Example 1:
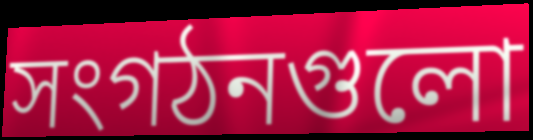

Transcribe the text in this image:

সংগঠনগুলো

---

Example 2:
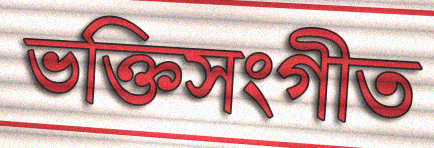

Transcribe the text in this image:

ভক্তিসংগীত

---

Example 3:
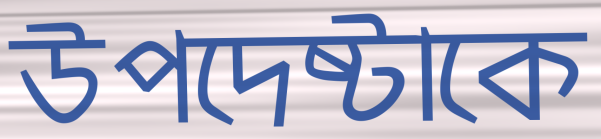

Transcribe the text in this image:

উপদেষ্টাকে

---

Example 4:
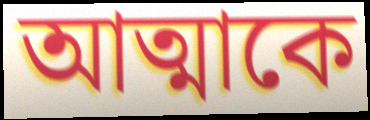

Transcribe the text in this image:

আত্মাকে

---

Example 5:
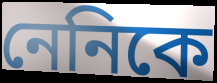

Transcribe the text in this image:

নেনিকে